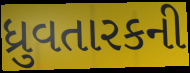
ધ્રુવતારકની